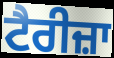
ਟੈਰੀਜ਼ਾ